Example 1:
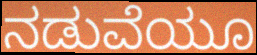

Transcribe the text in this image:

ನಡುವೆಯೂ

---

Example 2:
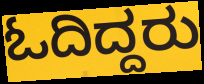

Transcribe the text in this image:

ಓದಿದ್ದರು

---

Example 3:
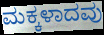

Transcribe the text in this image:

ಮಕ್ಕಳಾದವು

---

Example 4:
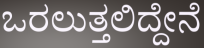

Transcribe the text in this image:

ಒರಲುತ್ತಲಿದ್ದೇನೆ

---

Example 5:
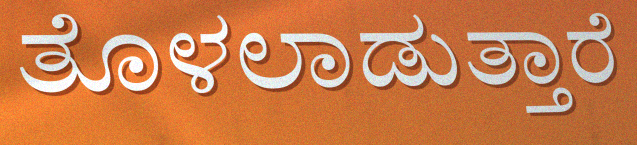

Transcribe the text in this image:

ತೊಳಲಾಡುತ್ತಾರೆ